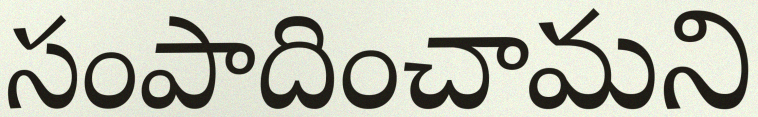
సంపాదించామని